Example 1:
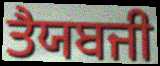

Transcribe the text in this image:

ਤੈਯਬਜੀ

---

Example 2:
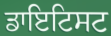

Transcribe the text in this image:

ਡਾਇਟਿਸਟ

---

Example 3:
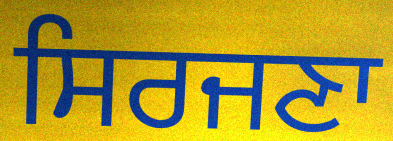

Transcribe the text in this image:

ਸਿਰਜਣਾ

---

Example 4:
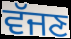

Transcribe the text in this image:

ਵੱਜਣ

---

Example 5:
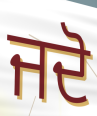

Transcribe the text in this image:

ਜਦੋ